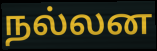
நல்லன